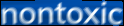
nontoxic